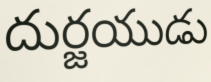
దుర్జయుడు